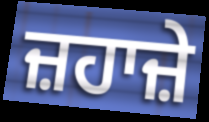
ਜ਼ਹਾਜ਼ੇ